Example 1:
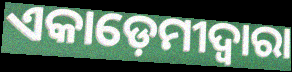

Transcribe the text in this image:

ଏକାଡ଼େମୀଦ୍ୱାରା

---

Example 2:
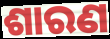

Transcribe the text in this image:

ଶାରଣ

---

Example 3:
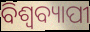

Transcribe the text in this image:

ବିଶ୍ୱବ୍ୟାପୀ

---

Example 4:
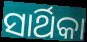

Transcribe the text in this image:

ସାର୍ଥିକା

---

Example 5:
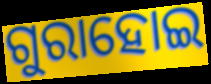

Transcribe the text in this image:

ଗୁରାହୋଇ